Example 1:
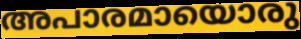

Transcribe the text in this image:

അപാരമായൊരു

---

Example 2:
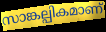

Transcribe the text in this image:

സാങ്കല്പികമാണ്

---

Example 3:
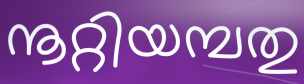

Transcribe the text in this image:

നൂറ്റിയമ്പതു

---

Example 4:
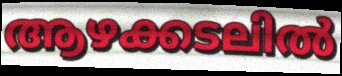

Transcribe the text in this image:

ആഴക്കടലിൽ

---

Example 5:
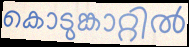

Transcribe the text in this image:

കൊടുങ്കാറ്റിൽ